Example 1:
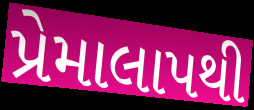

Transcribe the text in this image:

પ્રેમાલાપથી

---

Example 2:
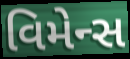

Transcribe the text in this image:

વિમેન્સ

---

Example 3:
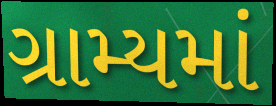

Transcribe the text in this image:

ગ્રામ્યમાં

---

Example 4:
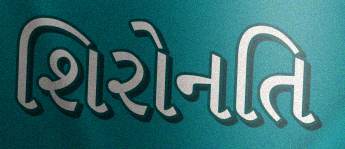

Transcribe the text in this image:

શિરોનતિ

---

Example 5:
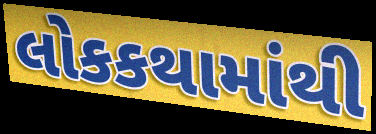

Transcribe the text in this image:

લોકકથામાંથી